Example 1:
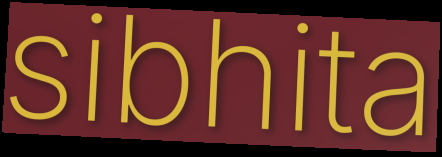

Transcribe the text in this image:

sibhita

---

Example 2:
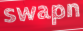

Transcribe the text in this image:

swapn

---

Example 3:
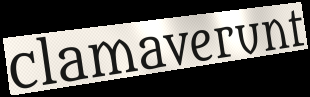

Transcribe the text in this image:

clamaverunt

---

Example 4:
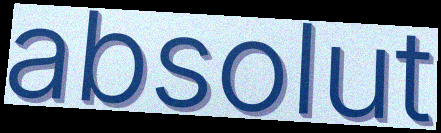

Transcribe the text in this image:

absolut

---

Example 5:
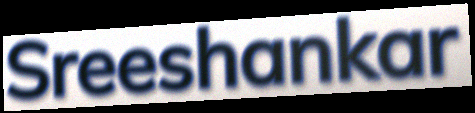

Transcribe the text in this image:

Sreeshankar